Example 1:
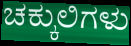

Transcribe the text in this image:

ಚಕ್ಕುಲಿಗಳು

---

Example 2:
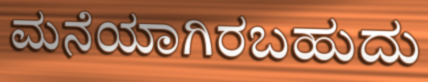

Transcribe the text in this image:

ಮನೆಯಾಗಿರಬಹುದು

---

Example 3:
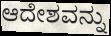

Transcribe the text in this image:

ಆದೇಶವನ್ನು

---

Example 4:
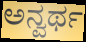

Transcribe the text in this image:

ಅನ್ವರ್ಥ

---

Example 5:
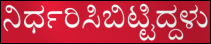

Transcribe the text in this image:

ನಿರ್ಧರಿಸಿಬಿಟ್ಟಿದ್ದಳು